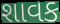
શાવક